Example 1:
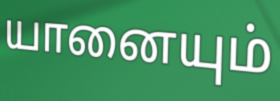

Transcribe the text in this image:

யானையும்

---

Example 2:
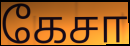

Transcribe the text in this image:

கேசா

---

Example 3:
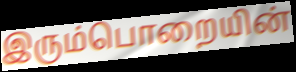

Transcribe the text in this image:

இரும்பொறையின்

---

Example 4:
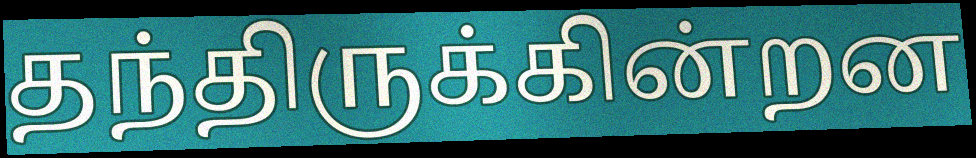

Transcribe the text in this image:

தந்திருக்கின்றன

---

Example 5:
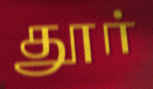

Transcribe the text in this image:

தூர்